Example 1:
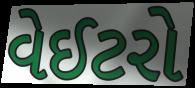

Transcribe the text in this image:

વેઈટરો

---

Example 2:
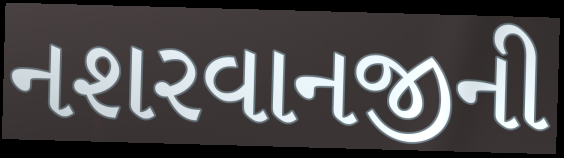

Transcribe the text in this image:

નશરવાનજીની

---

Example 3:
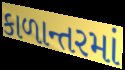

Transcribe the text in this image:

કાળાન્તરમાં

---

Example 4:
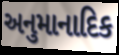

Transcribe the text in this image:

અનુમાનાદિક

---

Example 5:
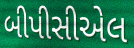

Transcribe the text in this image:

બીપીસીએલ